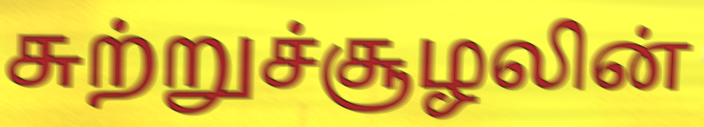
சுற்றுச்சூழலின்